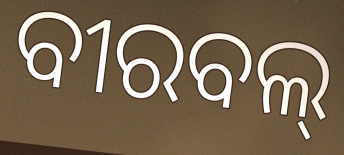
ବୀରବଲ୍